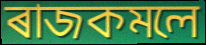
ৰাজকমলে